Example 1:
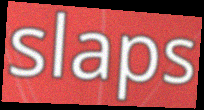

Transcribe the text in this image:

slaps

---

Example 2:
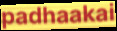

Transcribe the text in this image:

padhaakai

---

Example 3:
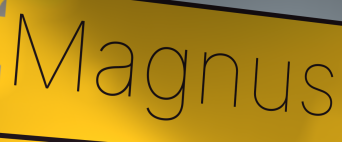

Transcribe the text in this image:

Magnus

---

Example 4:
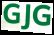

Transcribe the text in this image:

GJG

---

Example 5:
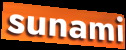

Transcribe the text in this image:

sunami